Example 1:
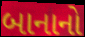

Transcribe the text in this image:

બાનાનો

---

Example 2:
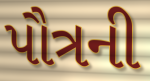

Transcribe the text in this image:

પૌત્રની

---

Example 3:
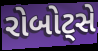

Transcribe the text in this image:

રોબોટ્સે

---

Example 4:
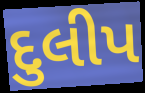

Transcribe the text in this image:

દુલીપ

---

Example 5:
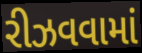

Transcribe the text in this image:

રીઝવવામાં